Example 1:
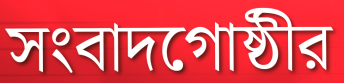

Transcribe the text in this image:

সংবাদগোষ্ঠীর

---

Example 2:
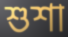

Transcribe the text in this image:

শুশা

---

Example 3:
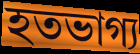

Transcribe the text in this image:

হতভাগ্য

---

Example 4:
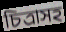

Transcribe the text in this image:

চিত্রাসহ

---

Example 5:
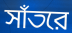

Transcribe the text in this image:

সাঁতরে